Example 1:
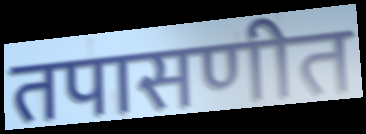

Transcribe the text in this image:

तपासणीत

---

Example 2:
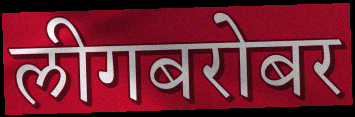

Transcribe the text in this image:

लीगबरोबर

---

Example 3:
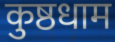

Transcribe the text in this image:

कुष्ठधाम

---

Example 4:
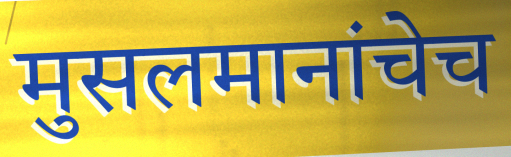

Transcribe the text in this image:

मुसलमानांचेच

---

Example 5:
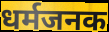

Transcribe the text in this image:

धर्मजनक